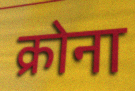
क्रोना